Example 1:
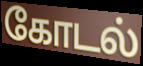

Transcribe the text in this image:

கோடல்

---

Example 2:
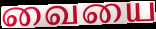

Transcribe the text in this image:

வையை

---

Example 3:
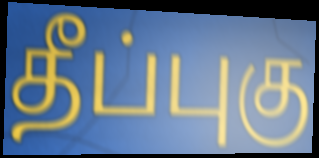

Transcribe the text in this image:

தீப்புகு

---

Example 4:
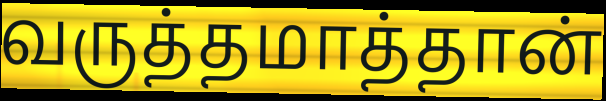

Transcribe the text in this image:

வருத்தமாத்தான்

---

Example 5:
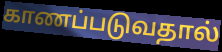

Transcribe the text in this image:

காணப்படுவதால்